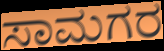
ಸಾಮಗರ